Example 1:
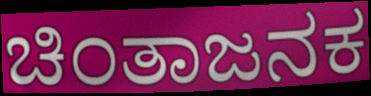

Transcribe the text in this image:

ಚಿಂತಾಜನಕ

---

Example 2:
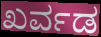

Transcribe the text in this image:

ಖರ್ವಡ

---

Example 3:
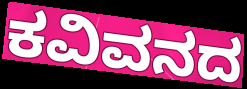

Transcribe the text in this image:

ಕವಿವನದ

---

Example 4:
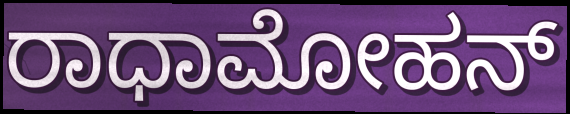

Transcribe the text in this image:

ರಾಧಾಮೋಹನ್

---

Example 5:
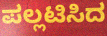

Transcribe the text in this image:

ಪಲ್ಲಟಿಸಿದ